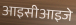
आइसीआइजे